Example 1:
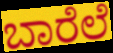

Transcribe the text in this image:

ಬಾರೆಲೆ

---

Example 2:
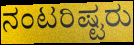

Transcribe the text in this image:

ನಂಟರಿಷ್ಟರು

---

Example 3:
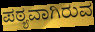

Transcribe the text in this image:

ಪಠ್ಯವಾಗಿರುವ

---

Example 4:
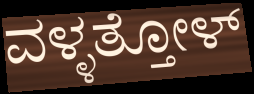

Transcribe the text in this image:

ವಳ್ಳತ್ತೋಳ್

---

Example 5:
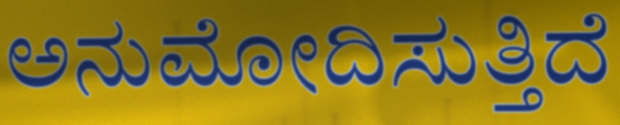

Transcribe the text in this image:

ಅನುಮೋದಿಸುತ್ತಿದೆ